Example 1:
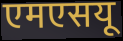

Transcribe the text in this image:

एमएसयू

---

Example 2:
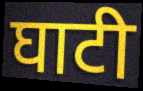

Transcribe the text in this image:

घाटी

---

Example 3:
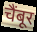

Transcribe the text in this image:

चैंबूर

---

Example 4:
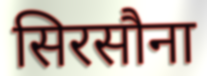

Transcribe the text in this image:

सिरसौना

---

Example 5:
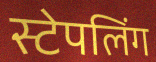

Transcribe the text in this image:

स्टेपलिंग